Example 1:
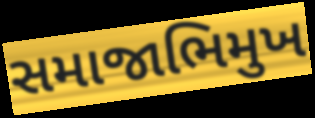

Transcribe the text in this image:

સમાજાભિમુખ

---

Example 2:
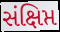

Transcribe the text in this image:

સંક્ષિપ્ત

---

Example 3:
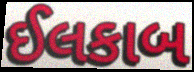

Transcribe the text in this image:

ઈલકાબ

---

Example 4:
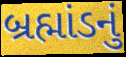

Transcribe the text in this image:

બ્રહ્માંડનું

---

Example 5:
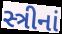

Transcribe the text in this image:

સ્ત્રીનાં